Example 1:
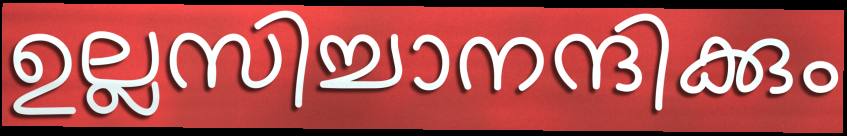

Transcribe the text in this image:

ഉല്ലസിച്ചാനന്ദിക്കും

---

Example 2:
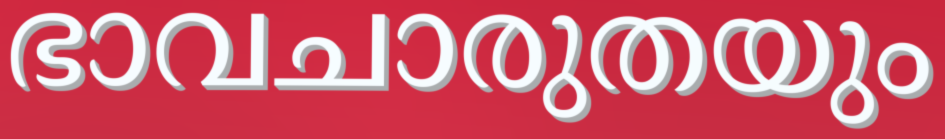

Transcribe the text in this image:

ഭാവചാരുതയും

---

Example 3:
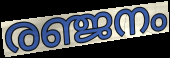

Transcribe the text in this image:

രഞ്ജനം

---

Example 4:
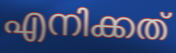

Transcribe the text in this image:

എനിക്കത്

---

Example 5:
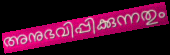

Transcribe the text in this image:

അനുഭവിപ്പിക്കുന്നതും